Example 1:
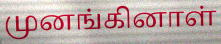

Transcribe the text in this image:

முனங்கினாள்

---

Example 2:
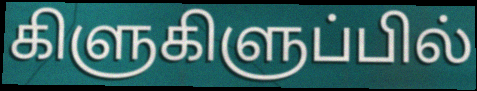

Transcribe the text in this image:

கிளுகிளுப்பில்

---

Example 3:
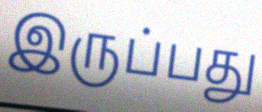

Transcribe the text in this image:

இருப்பது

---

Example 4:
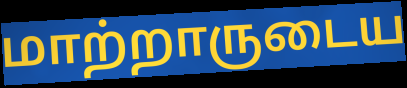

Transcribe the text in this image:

மாற்றாருடைய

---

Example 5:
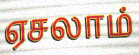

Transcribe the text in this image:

ஏசலாம்